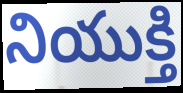
నియుక్తి